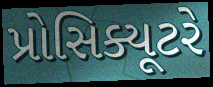
પ્રોસિક્યૂટરે